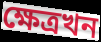
ক্ষেত্ৰখন